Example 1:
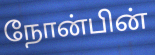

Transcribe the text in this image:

நோன்பின்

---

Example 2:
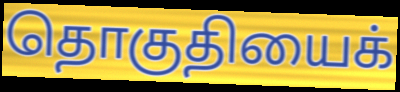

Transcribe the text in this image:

தொகுதியைக்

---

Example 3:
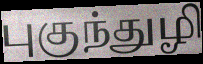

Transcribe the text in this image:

புகுந்துழி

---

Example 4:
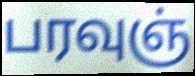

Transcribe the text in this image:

பரவுஞ்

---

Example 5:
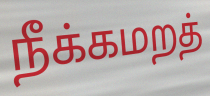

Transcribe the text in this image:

நீக்கமறத்